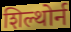
शिल्थोर्न